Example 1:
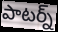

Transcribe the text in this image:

పాటర్న్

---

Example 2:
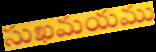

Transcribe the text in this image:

సుఖమయము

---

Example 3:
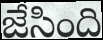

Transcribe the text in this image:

జేసింది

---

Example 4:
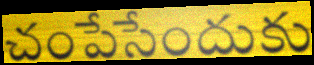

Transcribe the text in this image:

చంపేసేందుకు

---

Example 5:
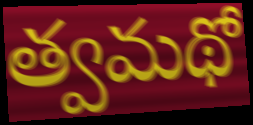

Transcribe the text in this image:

త్వమథో